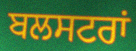
ਬਲਸਟਰਾਂ